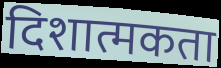
दिशात्मकता